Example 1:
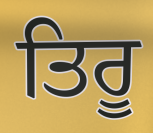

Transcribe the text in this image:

ਤਿਰੂ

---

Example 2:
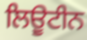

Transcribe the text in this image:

ਲਿਊਟੀਨ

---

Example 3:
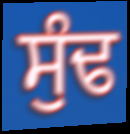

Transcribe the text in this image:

ਸੁੰਢ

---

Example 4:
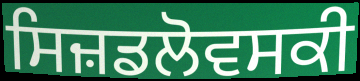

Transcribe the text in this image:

ਸਿਜ਼ਡਲੋਵਸਕੀ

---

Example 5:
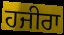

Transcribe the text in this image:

ਹਜੀਰਾ